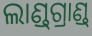
ଲାଣ୍ଡ୍‍ଗ୍ରାଣ୍ଡ୍